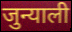
जुन्याली